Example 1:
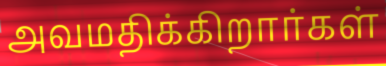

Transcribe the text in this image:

அவமதிக்கிறார்கள்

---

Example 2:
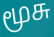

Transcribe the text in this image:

மூசு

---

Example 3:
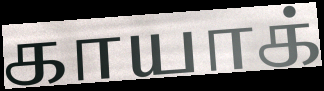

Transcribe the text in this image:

காயாக்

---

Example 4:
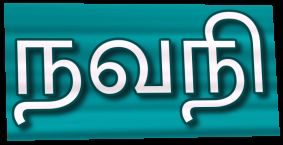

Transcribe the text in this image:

நவநி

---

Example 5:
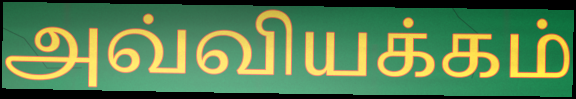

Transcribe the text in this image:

அவ்வியக்கம்